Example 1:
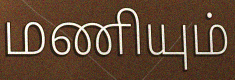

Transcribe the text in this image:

மணியும்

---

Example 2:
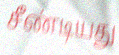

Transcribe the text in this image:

சீண்டியது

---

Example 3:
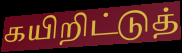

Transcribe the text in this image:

கயிறிட்டுத்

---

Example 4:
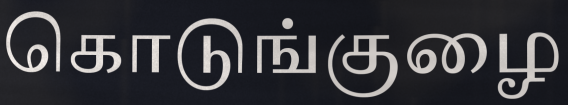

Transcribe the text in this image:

கொடுங்குழை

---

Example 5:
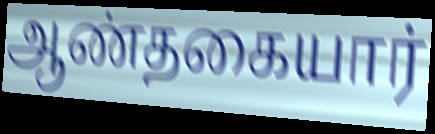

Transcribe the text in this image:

ஆண்தகையார்